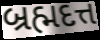
બ્રહ્મદત્ત